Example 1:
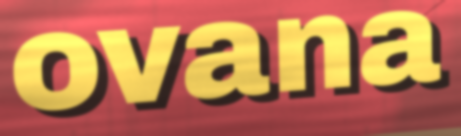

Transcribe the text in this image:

ovana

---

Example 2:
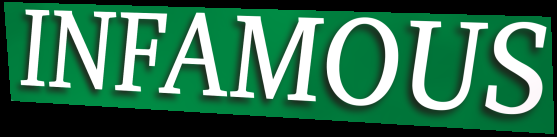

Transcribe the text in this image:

INFAMOUS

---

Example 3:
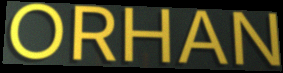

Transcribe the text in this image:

ORHAN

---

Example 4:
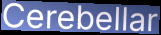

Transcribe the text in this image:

Cerebellar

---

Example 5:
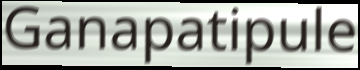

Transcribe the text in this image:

Ganapatipule